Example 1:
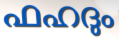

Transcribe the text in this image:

ഫഹദും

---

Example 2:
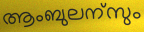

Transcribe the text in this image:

ആംബുലന്സും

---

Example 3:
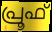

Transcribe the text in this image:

പ്രൂഫ്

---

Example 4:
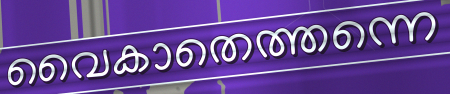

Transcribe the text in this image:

വൈകാതെത്തന്നെ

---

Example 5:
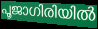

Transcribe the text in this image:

പൂജാഗിരിയിൽ